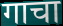
गाचा